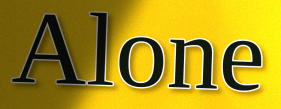
Alone